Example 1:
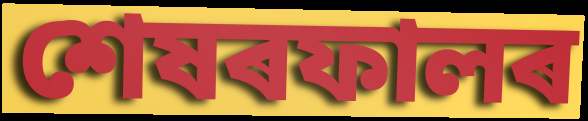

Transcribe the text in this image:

শেষৰফালৰ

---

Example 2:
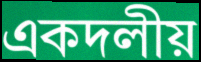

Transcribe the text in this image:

একদলীয়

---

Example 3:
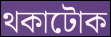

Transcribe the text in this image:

থকাটোক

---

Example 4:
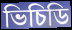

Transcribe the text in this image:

ভিচিডি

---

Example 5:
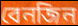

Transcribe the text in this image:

বেনজিন